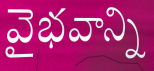
వైభవాన్ని